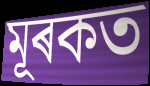
মূৰকত